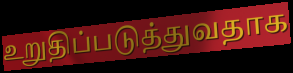
உறுதிப்படுத்துவதாக